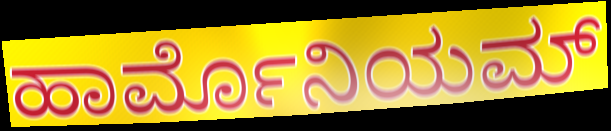
ಹಾರ್ಮೊನಿಯಮ್